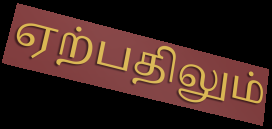
ஏற்பதிலும்